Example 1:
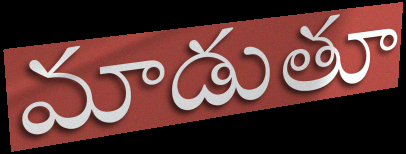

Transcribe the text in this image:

మాడుతూ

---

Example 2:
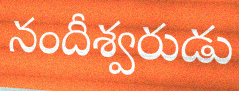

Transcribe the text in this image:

నందీశ్వరుడు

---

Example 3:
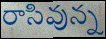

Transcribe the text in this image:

రాసివున్న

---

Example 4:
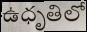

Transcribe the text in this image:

ఉధృతిలో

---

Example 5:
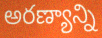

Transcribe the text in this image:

అరణ్యాన్ని